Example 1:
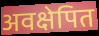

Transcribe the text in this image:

अवक्षेपित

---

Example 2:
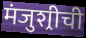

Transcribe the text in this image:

मंजुश्रीची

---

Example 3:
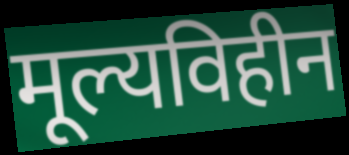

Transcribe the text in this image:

मूल्यविहीन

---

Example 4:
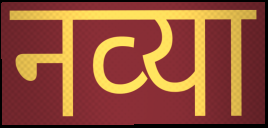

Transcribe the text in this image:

नव्‍या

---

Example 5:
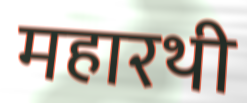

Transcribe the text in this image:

महारथी